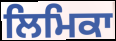
ਲਿਮਿਕਾ